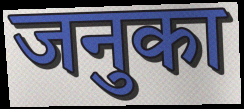
जनुका